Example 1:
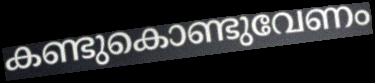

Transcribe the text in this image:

കണ്ടുകൊണ്ടുവേണം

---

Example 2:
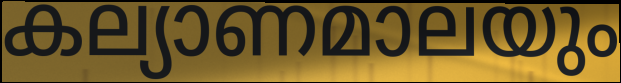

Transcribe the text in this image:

കല്യാണമാലയും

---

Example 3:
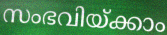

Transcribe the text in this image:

സംഭവിയ്ക്കാം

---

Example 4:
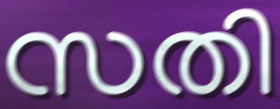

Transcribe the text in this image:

സതി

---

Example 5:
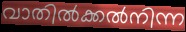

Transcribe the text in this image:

വാതിൽക്കൽനിന്ന